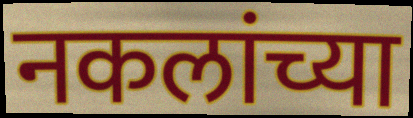
नकलांच्या